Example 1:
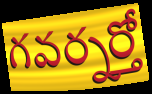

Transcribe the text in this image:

గవర్నర్తో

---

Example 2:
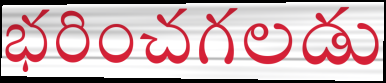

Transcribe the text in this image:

భరించగలడు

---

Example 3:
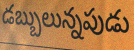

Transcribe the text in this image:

డబ్బులున్నపుడు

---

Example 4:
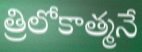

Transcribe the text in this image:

త్రిలోకాత్మనే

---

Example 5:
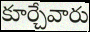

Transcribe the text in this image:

కూర్చేవారు